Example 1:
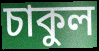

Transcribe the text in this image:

চাকুল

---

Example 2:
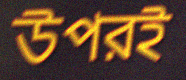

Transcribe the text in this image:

উপরই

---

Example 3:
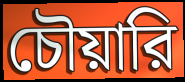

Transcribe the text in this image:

চৌয়ারি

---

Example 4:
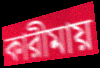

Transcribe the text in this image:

কারীমায়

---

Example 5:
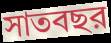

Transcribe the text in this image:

সাতবছর